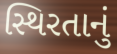
સ્થિરતાનું